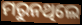
ମରୁନଥିଲେ